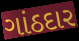
ગાંઠદાર